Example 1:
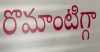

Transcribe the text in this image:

రొమాంటిగ్గా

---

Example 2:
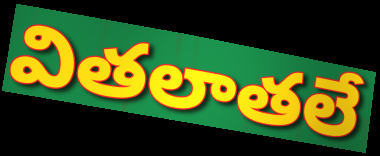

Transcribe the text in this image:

వితలాతలే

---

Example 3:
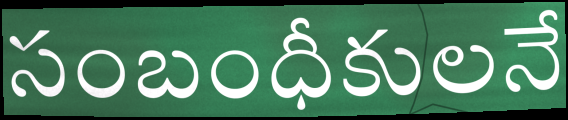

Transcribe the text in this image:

సంబంధీకులనే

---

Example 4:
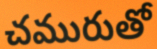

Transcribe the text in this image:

చమురుతో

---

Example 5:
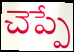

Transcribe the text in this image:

చెప్పే